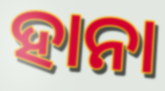
ହାନା